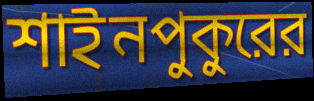
শাইনপুকুরের